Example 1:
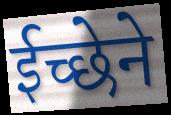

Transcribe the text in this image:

ईच्छेने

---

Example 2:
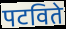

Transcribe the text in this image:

पटविते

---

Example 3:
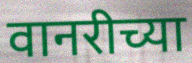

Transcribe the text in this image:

वानरीच्या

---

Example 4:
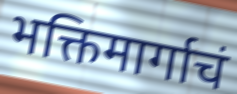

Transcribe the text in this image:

भक्तिमार्गाचं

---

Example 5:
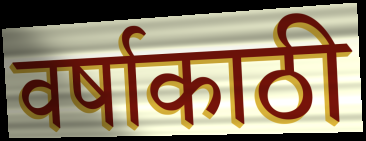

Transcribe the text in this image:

वर्षाकाठी